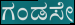
ಗಂಡಸೇ